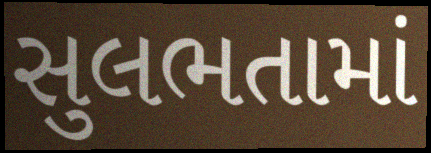
સુલભતામાં